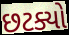
છટક્યો